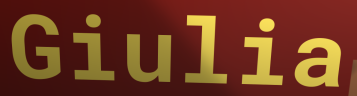
Giulia